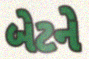
બેટને